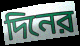
দিনের